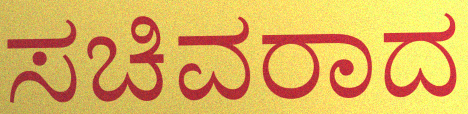
ಸಚಿವರಾದ